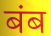
बंब